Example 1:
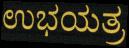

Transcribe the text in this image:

ಉಭಯತ್ರ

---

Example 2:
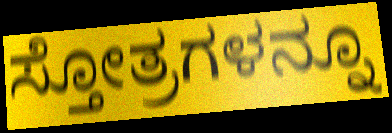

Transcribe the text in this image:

ಸ್ತೋತ್ರಗಳನ್ನೂ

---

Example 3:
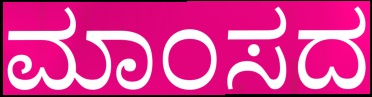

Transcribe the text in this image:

ಮಾಂಸದ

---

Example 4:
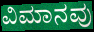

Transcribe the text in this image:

ವಿಮಾನವು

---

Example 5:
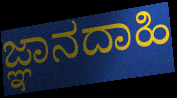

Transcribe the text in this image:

ಜ್ಞಾನದಾಹಿ